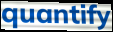
quantify